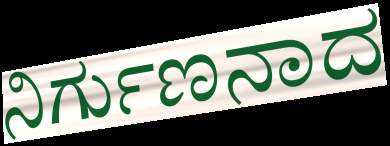
ನಿರ್ಗುಣನಾದ